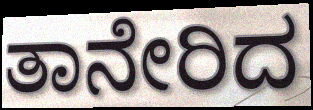
ತಾನೇರಿದ